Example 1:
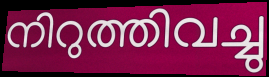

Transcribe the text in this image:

നിറുത്തിവച്ചു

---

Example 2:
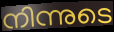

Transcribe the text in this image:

നിന്നുടെ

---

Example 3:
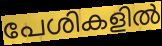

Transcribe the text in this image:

പേശികളിൽ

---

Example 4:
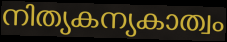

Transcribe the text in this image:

നിത്യകന്യകാത്വം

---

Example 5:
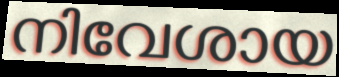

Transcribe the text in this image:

നിവേശായ